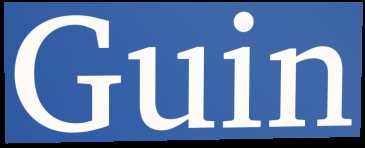
Guin